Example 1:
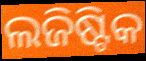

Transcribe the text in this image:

ଲଜିଷ୍ଟିକ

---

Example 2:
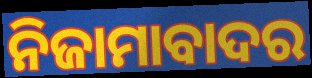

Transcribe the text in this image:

ନିଜାମାବାଦର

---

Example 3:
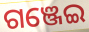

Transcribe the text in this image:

ଗଞ୍ଜେଇ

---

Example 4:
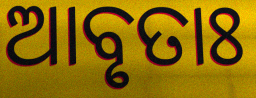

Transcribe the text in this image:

ଆବୃତାଃ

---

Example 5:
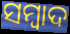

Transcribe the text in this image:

ସମ୍ବାଦ